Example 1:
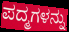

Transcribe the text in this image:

ಪದ್ಮಗಳನ್ನು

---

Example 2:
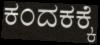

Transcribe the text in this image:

ಕಂದಕಕ್ಕೆ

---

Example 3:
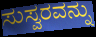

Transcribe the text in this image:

ಸುಸ್ವರವನ್ನು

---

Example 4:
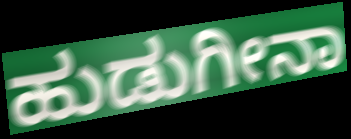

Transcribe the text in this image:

ಹುಡುಗೀನಾ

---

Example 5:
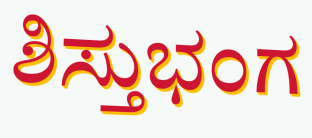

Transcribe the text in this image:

ಶಿಸ್ತುಭಂಗ